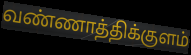
வண்ணாத்திக்குளம்